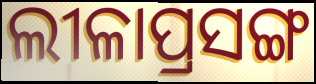
ଲୀଳାପ୍ରସଙ୍ଗ